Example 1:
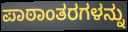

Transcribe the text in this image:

ಪಾಠಾಂತರಗಳನ್ನು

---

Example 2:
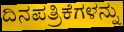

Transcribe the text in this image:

ದಿನಪತ್ರಿಕೆಗಳನ್ನು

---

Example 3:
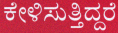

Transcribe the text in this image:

ಕೇಳಿಸುತ್ತಿದ್ದರೆ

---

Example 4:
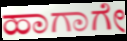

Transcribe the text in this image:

ಹಾಗಾಗೇ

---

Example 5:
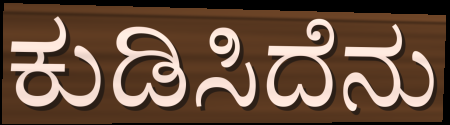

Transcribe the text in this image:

ಕುಡಿಸಿದೆನು